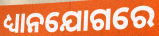
ଧ୍ୟାନଯୋଗରେ